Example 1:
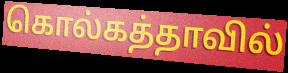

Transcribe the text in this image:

கொல்கத்தாவில்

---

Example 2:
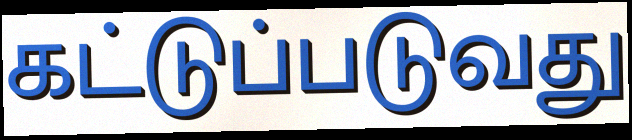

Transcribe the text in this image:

கட்டுப்படுவது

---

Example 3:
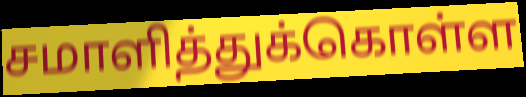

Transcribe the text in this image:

சமாளித்துக்கொள்ள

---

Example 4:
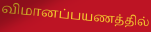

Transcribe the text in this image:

விமானப்பயணத்தில்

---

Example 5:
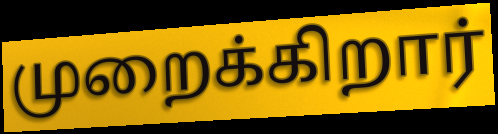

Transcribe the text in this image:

முறைக்கிறார்